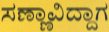
ಸಣ್ಣಾವಿದ್ದಾಗ